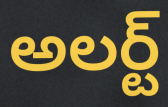
అలర్ట్